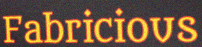
Fabricious